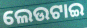
ଲେଉଟାଇ